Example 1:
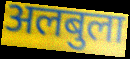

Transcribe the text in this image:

अलबुला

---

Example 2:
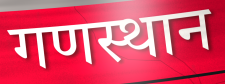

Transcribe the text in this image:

गणस्थान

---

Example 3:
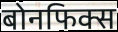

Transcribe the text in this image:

बोनफिक्स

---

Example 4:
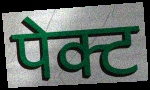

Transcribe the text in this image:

पेक्ट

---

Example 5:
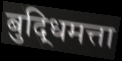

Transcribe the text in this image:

बुद्धिमत्ता